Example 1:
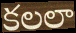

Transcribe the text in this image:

కలలా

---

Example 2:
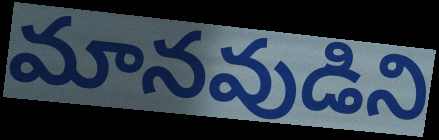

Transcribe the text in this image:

మానవుడిని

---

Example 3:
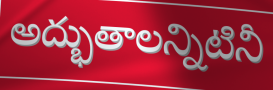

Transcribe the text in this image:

అద్భుతాలన్నిటినీ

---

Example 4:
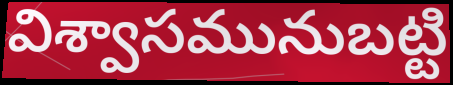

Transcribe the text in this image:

విశ్వాసమునుబట్టి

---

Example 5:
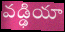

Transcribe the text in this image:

వడ్ఢియా